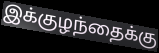
இக்குழந்தைக்கு